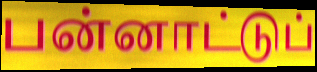
பன்னாட்டுப்